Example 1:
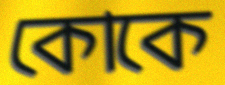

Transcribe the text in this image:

কোকে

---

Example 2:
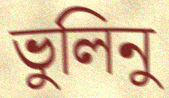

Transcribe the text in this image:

ভুলিনু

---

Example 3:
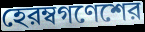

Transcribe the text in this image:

হেরম্বগণেশের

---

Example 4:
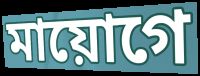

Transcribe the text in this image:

মায়োগে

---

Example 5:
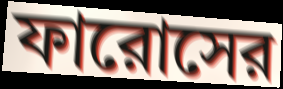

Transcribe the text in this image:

ফারোসের